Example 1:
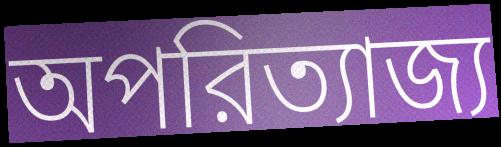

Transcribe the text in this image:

অপরিত্যাজ্য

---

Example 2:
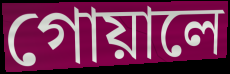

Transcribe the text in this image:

গোয়ালে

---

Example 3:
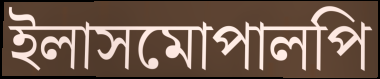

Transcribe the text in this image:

ইলাসমোপালপি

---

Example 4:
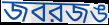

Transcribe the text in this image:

জবরজঙ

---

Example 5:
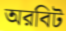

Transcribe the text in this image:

অরবিট